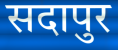
सदापुर